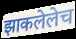
झाकलेलेच